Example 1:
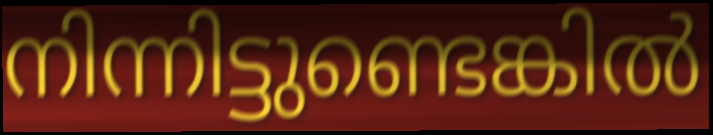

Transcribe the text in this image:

നിന്നിട്ടുണ്ടെങ്കിൽ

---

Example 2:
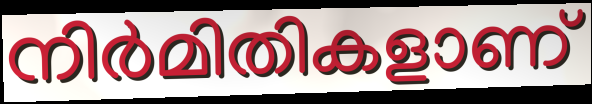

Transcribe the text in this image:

നിർമിതികളാണ്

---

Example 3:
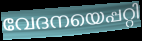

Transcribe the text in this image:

വേദനയെപ്പറ്റി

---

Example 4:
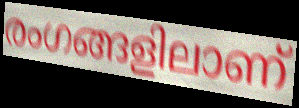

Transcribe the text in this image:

രംഗങ്ങളിലാണ്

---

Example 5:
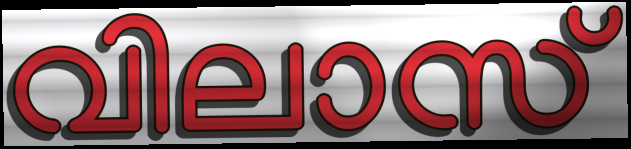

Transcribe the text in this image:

വിലാസ്